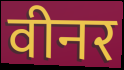
वीनर